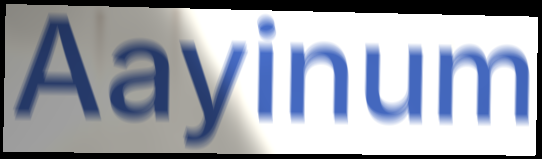
Aayinum